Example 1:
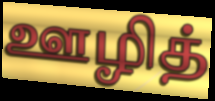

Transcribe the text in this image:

ஊழித்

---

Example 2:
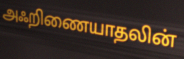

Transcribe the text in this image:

அஃறிணையாதலின்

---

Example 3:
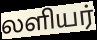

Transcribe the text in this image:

லளியர்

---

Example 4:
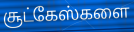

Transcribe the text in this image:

சூட்கேஸ்களை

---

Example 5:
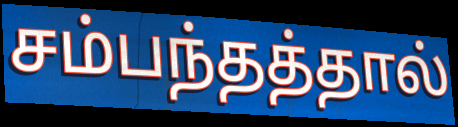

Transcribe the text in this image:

சம்பந்தத்தால்